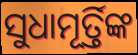
ସୁଧାମୂର୍ତ୍ତିଙ୍କ